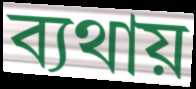
ব্যথায়